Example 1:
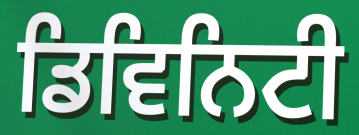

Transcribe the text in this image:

ਡਿਵਿਨਿਟੀ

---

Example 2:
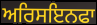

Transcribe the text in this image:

ਅਰਿਸਇਨਫਾ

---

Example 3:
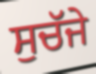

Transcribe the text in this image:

ਸੁਚੱਜੇ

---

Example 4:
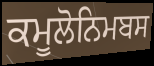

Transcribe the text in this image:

ਕਮੂਲੋਨਿਮਬਸ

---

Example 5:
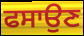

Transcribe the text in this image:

ਫਸਾਉਣ